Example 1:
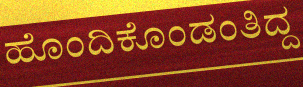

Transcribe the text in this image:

ಹೊಂದಿಕೊಂಡಂತಿದ್ದ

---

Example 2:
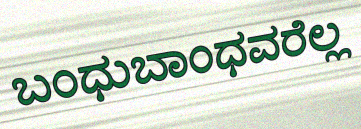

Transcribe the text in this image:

ಬಂಧುಬಾಂಧವರೆಲ್ಲ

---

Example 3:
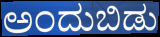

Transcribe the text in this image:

ಅಂದುಬಿಡು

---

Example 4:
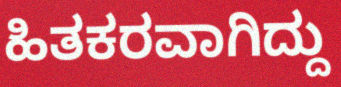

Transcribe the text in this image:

ಹಿತಕರವಾಗಿದ್ದು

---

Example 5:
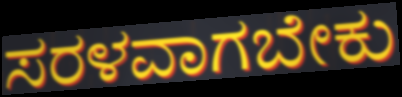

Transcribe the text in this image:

ಸರಳವಾಗಬೇಕು